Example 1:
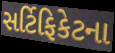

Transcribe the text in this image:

સર્ટિફિકેટના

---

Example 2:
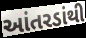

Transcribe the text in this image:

આંતરડાંથી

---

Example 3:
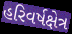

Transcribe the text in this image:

હરિવર્ષક્ષેત્ર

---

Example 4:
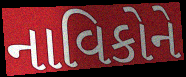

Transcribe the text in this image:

નાવિકોને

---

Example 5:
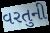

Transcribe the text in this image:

વરતુની